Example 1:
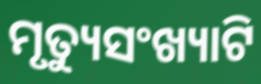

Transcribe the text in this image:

ମୃତ୍ୟୁସଂଖ୍ୟାଟି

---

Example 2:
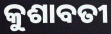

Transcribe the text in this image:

କୁଶାବତୀ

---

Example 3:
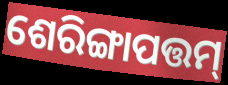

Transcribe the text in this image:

ଶେରିଙ୍ଗାପତ୍ତମ୍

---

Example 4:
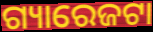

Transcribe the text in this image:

ଗ୍ୟାରେଜଟା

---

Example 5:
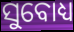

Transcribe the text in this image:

ସୁବୋଧ୍ୟ